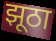
झूठा